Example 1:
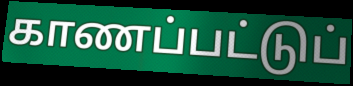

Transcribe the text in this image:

காணப்பட்டுப்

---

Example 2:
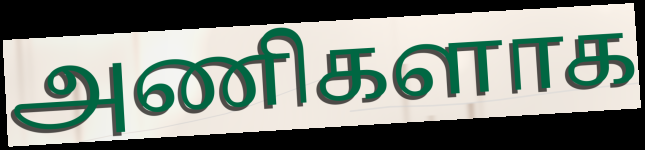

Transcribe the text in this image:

அணிகளாக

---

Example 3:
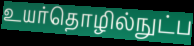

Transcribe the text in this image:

உயர்தொழில்நுட்ப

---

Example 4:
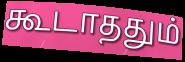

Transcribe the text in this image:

கூடாததும்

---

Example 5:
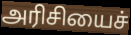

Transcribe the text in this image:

அரிசியைச்